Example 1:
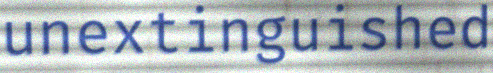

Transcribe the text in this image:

unextinguished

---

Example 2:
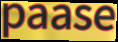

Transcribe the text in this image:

paase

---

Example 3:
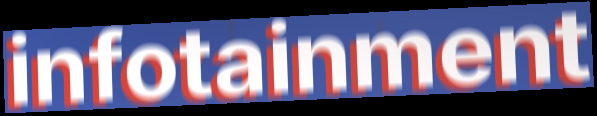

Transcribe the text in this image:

infotainment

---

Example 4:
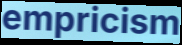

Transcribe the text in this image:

empricism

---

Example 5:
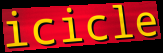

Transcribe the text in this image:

icicle